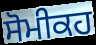
ਸੋਮੀਕਹ